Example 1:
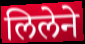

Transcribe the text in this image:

लिलेने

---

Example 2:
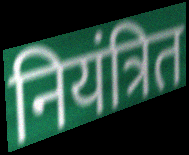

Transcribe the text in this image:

नियंत्रित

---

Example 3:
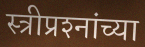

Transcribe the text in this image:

स्त्रीप्रश्नांच्या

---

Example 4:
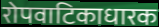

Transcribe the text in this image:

रोपवाटिकाधारक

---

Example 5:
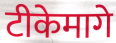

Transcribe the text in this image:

टीकेमागे